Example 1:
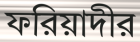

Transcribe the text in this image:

ফরিয়াদীর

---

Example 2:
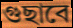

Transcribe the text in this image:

গুছাবে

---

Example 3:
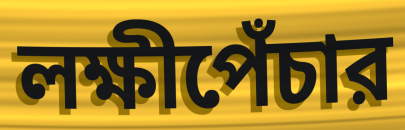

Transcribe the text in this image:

লক্ষীপেঁচার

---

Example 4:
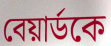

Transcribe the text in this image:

বেয়ার্ডকে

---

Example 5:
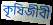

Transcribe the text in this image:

কৃষিজীবী